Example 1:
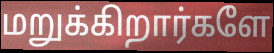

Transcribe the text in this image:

மறுக்கிறார்களே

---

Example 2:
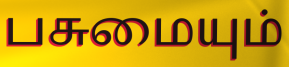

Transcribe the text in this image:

பசுமையும்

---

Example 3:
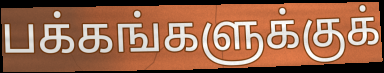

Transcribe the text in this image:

பக்கங்களுக்குக்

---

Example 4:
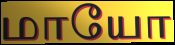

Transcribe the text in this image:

மாயோ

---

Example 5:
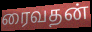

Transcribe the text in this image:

ரைவதன்